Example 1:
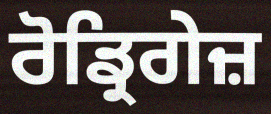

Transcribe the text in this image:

ਰੋਡ੍ਰਿਗੇਜ਼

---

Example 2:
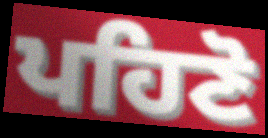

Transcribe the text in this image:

ਪਹਿਣੋ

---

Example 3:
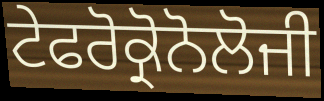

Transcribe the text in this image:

ਟੇਫਰੋਕ੍ਰੋਨੋਲੋਜੀ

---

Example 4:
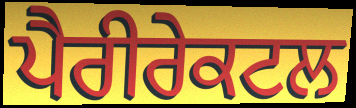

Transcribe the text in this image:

ਪੈਰੀਰੇਕਟਲ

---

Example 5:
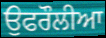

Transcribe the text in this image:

ਉਫਰੌਲੀਆ